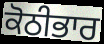
ਕੋਠੀਭਾਰ